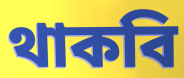
থাকবি